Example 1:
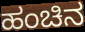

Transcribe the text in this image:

ಹಂಚಿನ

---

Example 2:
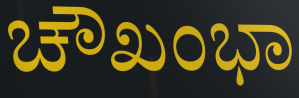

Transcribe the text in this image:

ಚೌಖಂಭಾ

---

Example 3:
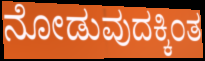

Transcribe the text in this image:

ನೋಡುವುದಕ್ಕಿಂತ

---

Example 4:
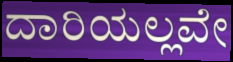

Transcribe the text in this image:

ದಾರಿಯಲ್ಲವೇ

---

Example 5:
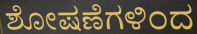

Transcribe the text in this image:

ಶೋಷಣೆಗಳಿಂದ